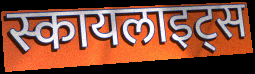
स्कायलाइट्स